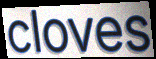
cloves